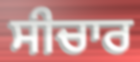
ਸੀਚਾਰ